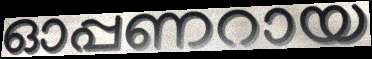
ഓപ്പണറായ